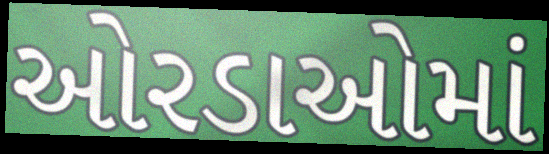
ઓરડાઓમાં